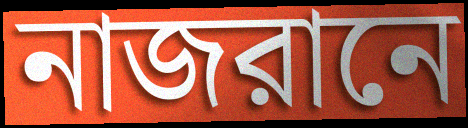
নাজরানে